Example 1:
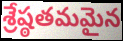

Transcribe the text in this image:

శ్రేష్ఠతమమైన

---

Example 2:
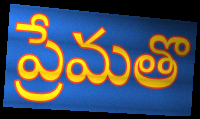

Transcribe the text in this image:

ప్రేమతొ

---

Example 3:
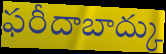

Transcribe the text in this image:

ఫరీదాబాద్కు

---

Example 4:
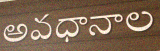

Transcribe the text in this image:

అవధానాల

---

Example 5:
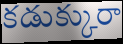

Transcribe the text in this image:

కడుక్కురా